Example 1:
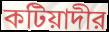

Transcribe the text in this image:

কটিয়াদীর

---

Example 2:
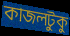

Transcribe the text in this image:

কাজলটুকু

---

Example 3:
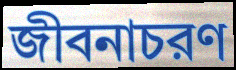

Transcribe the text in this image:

জীবনাচরণ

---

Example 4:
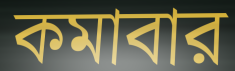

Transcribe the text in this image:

কমাবার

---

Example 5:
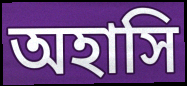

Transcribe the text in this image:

অহাসি